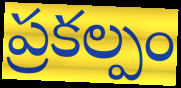
ప్రకల్పం